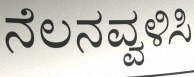
ನೆಲನವ್ವಳಿಸಿ